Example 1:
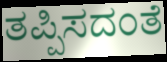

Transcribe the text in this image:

ತಪ್ಪಿಸದಂತೆ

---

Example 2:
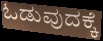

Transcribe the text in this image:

ಓಡುವುದಕ್ಕೆ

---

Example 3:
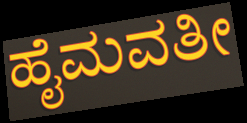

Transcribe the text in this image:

ಹೈಮವತೀ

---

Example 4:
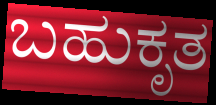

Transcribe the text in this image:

ಬಹುಕೃತ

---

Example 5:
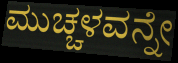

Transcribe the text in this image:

ಮುಚ್ಚಳವನ್ನೇ